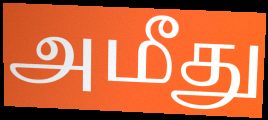
அமீது